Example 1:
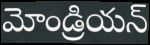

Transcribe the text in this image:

మోండ్రియన్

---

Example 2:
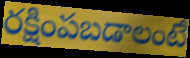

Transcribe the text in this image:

రక్షింపబడాలంటే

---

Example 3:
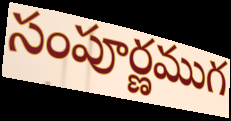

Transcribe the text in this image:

సంపూర్ణముగ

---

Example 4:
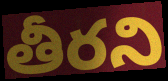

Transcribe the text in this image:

తీరని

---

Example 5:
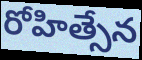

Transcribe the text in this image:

రోహిత్సేన